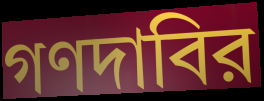
গণদাবির